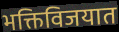
भक्तिविजयात